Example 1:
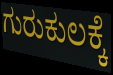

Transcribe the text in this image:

ಗುರುಕುಲಕ್ಕೆ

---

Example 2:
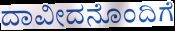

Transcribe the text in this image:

ದಾವೀದನೊಂದಿಗೆ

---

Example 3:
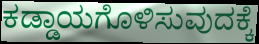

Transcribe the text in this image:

ಕಡ್ಡಾಯಗೊಳಿಸುವುದಕ್ಕೆ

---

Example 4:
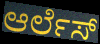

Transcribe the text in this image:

ಆರ್ಲೆಸ್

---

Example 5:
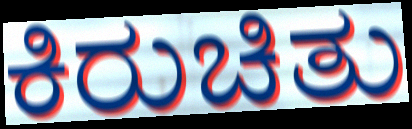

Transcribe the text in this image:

ಕಿರುಚಿತು